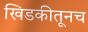
खिडकीतूनच